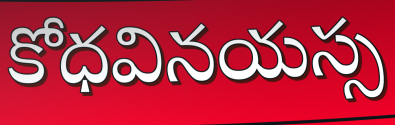
కోధవినయస్స